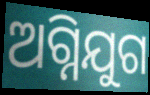
ଅଗ୍ନିଯୁଗ